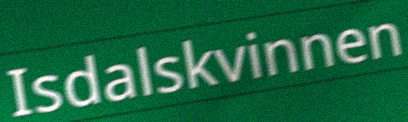
Isdalskvinnen